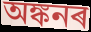
অঙ্কনৰ